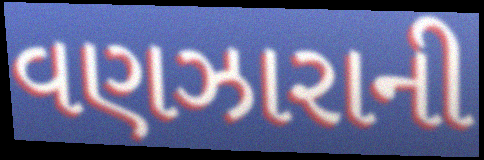
વણઝારાની